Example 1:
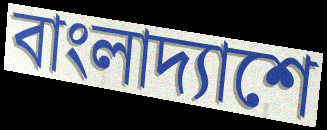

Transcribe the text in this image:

বাংলাদ্যাশে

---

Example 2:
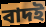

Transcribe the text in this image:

বাদই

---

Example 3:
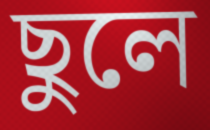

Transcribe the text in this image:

ছুলে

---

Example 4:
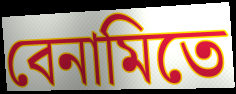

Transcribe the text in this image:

বেনামিতে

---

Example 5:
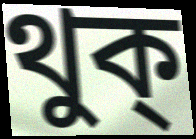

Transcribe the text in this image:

থুক্